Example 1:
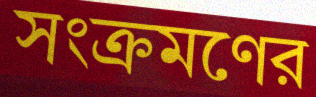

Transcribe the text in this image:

সংক্রমণের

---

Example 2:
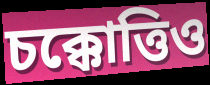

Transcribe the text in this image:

চক্কোত্তিও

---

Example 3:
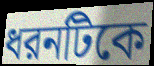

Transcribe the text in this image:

ধরনটিকে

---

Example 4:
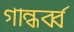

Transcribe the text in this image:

গান্ধর্ব্ব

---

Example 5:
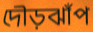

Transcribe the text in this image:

দৌড়ঝাঁপ